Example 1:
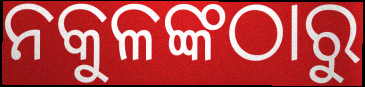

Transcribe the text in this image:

ନକୁଳଙ୍କଠାରୁ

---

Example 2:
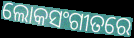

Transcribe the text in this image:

ଲୋକସଂଗୀତରେ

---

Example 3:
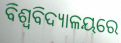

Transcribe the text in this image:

ବିଶ୍ୱବିଦ୍ୟାଳୟରେ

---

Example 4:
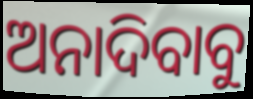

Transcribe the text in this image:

ଅନାଦିବାବୁ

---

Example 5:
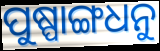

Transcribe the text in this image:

ପୁଷ୍ପାଙ୍ଗଧନୁ